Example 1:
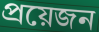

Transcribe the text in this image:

প্রয়েজন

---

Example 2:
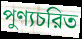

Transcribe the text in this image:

পুণ্যচরিত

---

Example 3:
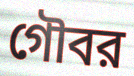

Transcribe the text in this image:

গৌবর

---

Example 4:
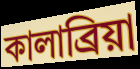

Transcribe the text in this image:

কালাব্রিয়া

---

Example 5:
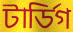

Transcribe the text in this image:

টার্ডিগ